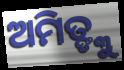
ଅମିତ୍ଙ୍କୁ